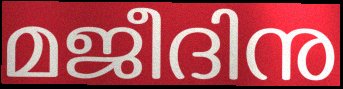
മജീദിനു